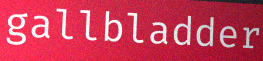
gallbladder